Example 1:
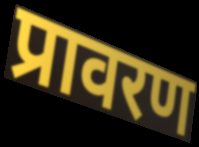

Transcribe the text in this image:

प्रावरण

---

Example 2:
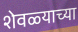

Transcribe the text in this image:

शेवळ्याच्या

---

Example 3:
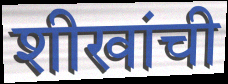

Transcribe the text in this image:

शीखांची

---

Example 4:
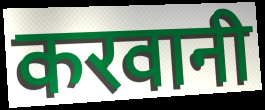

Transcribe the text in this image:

करवानी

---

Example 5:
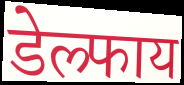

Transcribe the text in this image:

डेल्फाय